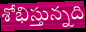
శోభిస్తున్నది